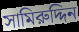
সামিরুদ্দিন